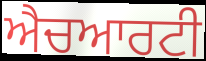
ਐਚਆਰਟੀ